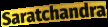
Saratchandra